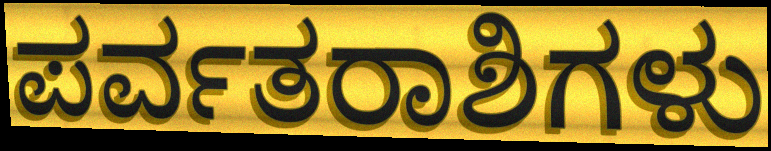
ಪರ್ವತರಾಶಿಗಳು